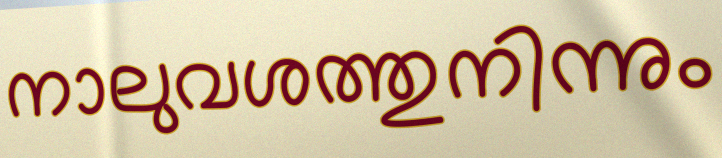
നാലുവശത്തുനിന്നും